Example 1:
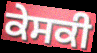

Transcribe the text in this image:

ਕੇਸਕੀ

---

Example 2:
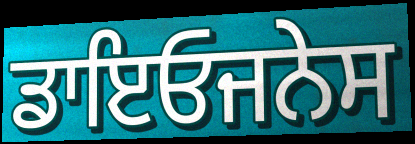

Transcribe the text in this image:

ਡਾਇਓਜਨੇਸ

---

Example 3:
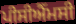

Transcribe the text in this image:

ਪੀਸੀਐੱਮਸੀ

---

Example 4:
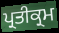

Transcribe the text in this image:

ਪ੍ਰਤੀਕ੍ਰਮ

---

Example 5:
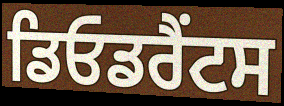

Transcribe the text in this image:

ਡਿਓਡਰੈਂਟਸ